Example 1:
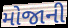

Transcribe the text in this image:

મોજાની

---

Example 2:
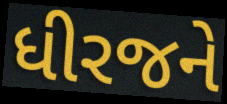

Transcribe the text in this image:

ધીરજને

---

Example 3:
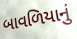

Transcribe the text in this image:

બાવળિયાનું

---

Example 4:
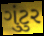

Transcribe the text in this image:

ગુંટુર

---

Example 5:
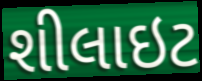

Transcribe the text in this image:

શીલાઇટ